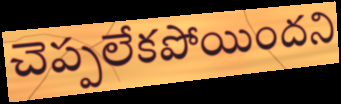
చెప్పలేకపోయిందని